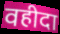
वहीदा